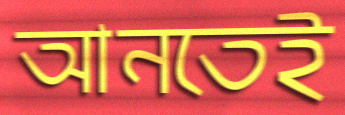
আনতেই